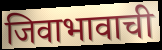
जिवाभावाची